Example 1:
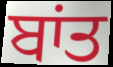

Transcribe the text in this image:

ਬਾਂਤ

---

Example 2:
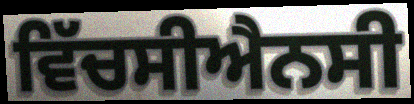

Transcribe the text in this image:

ਵਿੱਚਸੀਐਨਸੀ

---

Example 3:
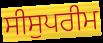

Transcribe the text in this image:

ਸੀਸੁਪਰੀਮ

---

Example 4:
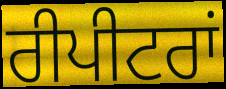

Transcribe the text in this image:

ਰੀਪੀਟਰਾਂ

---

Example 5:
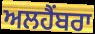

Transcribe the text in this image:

ਅਲਹੈਂਬਰਾ